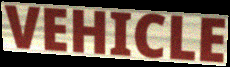
VEHICLE